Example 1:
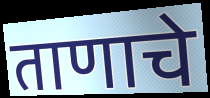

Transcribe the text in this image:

ताणाचे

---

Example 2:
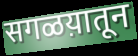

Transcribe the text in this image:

सगळय़ातून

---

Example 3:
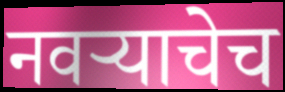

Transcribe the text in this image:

नवऱ्याचेच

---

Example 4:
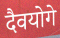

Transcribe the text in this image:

दैवयोगे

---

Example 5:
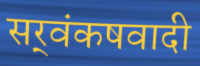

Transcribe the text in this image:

सर्वंकषवादी